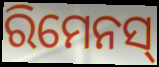
ରିମେନସ୍